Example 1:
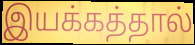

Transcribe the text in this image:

இயக்கத்தால்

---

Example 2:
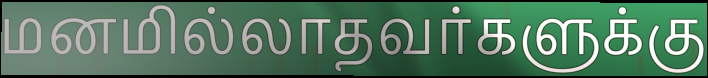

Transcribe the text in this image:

மனமில்லாதவர்களுக்கு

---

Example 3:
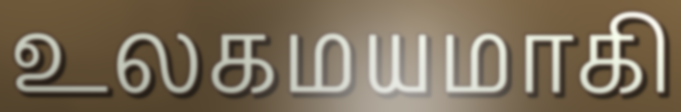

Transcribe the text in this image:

உலகமயமாகி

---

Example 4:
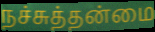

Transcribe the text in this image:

நச்சுத்தன்மை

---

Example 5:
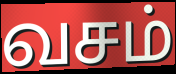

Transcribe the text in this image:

வசம்